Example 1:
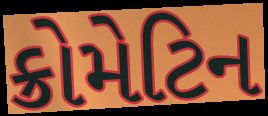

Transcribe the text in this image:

ક્રોમેટિન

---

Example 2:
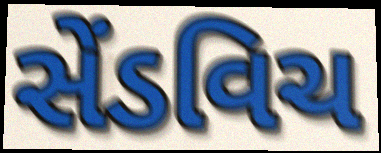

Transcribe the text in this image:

સેંડવિચ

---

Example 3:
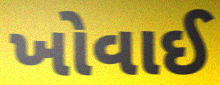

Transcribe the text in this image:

ખોવાઈ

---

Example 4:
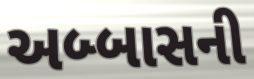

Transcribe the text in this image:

અબ્બાસની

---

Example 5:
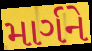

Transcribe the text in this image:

માર્ગને